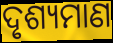
ଦୃଶ୍ୟମାଣ